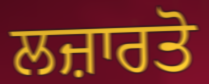
ਲਜ਼ਾਰਤੋ